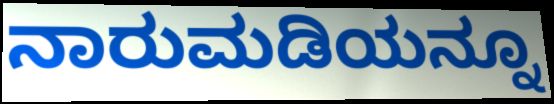
ನಾರುಮಡಿಯನ್ನೂ